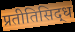
प्रतीतिसिद्ध